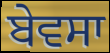
ਬੇਵਸਾ